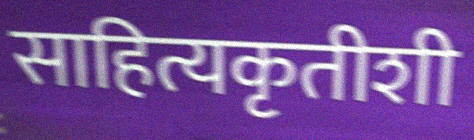
साहित्यकृतीशी